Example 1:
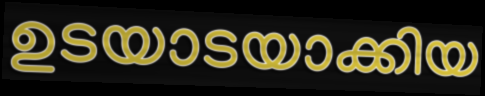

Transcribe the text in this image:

ഉടയാടയാക്കിയ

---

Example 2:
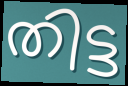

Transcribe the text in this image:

തിട്ട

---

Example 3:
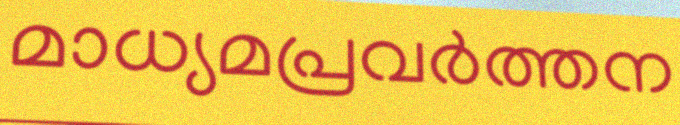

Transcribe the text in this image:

മാധ്യമപ്രവർത്തന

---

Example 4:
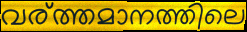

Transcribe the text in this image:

വര്ത്തമാനത്തിലെ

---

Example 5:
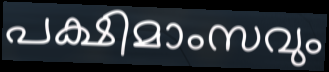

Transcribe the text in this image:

പക്ഷിമാംസവും